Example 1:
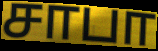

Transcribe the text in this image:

சாபா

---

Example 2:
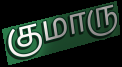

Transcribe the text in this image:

குமாரு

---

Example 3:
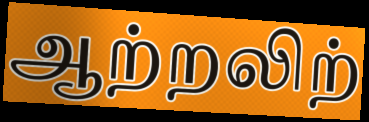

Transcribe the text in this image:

ஆற்றலிற்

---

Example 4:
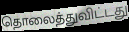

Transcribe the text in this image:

தொலைத்துவிட்டது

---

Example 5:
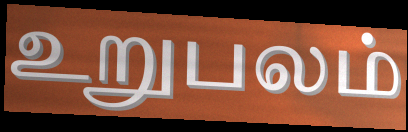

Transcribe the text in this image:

உறுபலம்